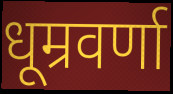
धूम्रवर्णा